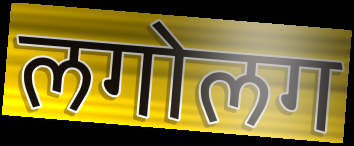
लगोलग